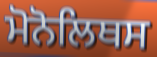
ਮੋਨੋਲਿਥਸ